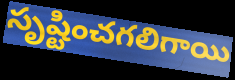
సృష్టించగలిగాయి